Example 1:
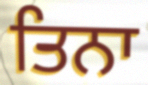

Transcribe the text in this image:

ਤਿਨਾ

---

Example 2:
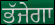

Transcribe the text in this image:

ਭੱਜੇਗਾ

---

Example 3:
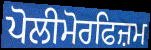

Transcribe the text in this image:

ਪੋਲੀਮੋਰਫਿਜ਼ਮ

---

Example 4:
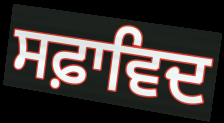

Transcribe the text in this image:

ਸਫ਼ਾਵਿਦ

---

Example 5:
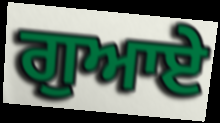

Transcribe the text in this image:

ਗੁਆਏ